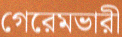
গেরেমভারী